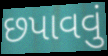
છપાવવું